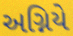
અગ્નિયે